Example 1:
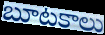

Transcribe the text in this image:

బూటకాలు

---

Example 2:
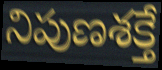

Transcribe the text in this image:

నిపుణశక్తే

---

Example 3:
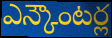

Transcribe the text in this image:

ఎన్కౌంటర్ల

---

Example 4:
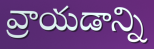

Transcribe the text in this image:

వ్రాయడాన్ని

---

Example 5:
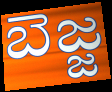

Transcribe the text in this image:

బెజ్జ